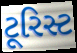
ટૂરિસ્ટ